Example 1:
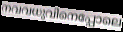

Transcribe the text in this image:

നവവധുവിനെപ്പോലെ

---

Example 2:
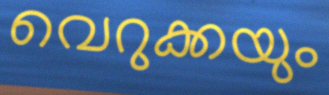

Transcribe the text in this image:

വെറുക്കയും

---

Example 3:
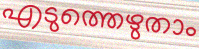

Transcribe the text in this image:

എടുത്തെഴുതാം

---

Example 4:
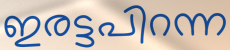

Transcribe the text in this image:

ഇരട്ടപിറന്ന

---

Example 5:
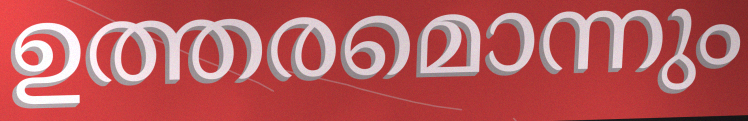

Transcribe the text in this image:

ഉത്തരമൊന്നും